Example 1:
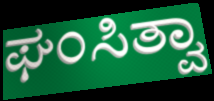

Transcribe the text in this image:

ಘಂಸಿತ್ವಾ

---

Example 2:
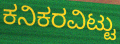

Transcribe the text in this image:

ಕನಿಕರವಿಟ್ಟು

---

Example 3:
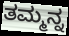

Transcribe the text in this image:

ತಮ್ಮನ್ನ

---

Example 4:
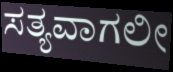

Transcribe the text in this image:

ಸತ್ಯವಾಗಲೀ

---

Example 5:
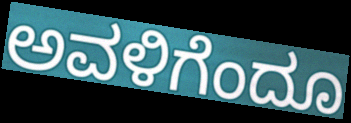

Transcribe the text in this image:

ಅವಳಿಗೆಂದೂ